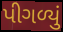
પીગળ્યું